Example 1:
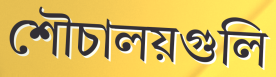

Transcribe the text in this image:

শৌচালয়গুলি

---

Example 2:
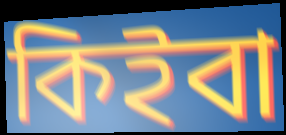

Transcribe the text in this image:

কিইবা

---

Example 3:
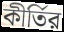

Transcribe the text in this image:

কীর্তির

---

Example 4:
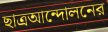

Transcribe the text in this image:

ছাত্রআন্দোলনের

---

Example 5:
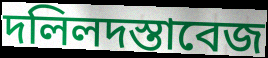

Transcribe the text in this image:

দলিলদস্তাবেজ